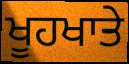
ਖੂਹਖਾਤੇ